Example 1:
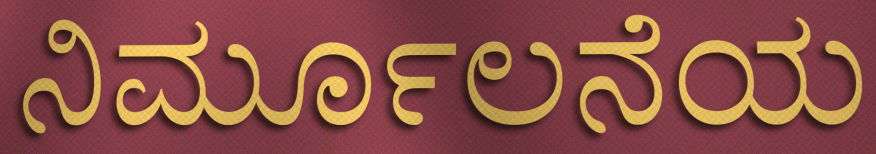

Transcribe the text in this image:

ನಿರ್ಮೂಲನೆಯ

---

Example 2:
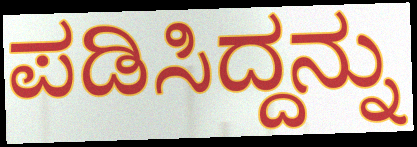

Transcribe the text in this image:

ಪಡಿಸಿದ್ದನ್ನು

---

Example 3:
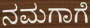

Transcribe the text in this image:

ನಮಗಾಗೆ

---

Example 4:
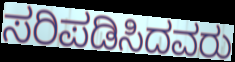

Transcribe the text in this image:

ಸರಿಪಡಿಸಿದವರು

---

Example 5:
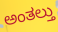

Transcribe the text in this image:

ಅಂತಲ್ತು